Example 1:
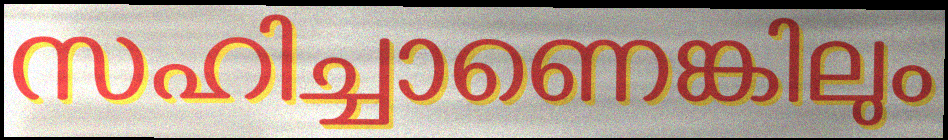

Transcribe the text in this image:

സഹിച്ചാണെങ്കിലും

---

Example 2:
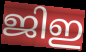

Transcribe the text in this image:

ജിഇ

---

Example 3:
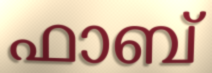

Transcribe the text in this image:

ഫാബ്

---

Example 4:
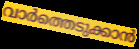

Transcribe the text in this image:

വാർത്തെടുക്കാൻ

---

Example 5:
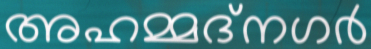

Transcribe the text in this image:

അഹമ്മദ്നഗർ